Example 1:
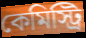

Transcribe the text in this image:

কেমিস্ট্রি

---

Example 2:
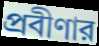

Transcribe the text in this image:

প্রবীণার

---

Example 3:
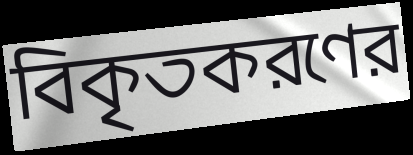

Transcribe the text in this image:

বিকৃতকরণের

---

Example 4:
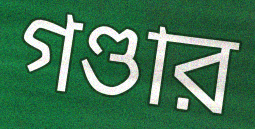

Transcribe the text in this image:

গণ্ডার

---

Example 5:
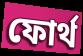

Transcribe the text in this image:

ফোর্থ